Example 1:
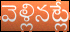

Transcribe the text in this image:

వెళ్లినట్లే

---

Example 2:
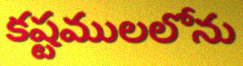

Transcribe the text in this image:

కష్టములలోను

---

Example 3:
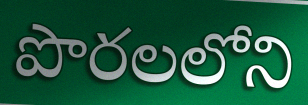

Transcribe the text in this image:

పొరలలోని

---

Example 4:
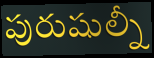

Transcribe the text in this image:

పురుషుల్నీ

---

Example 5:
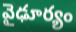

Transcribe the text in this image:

వైఢూర్యం